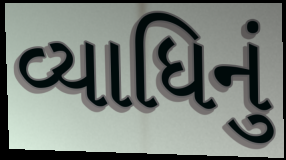
વ્યાધિનું